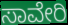
ಸಾವೇರಿ